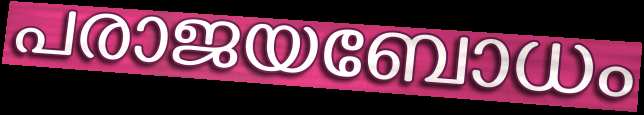
പരാജയബോധം